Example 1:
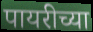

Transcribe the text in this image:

पायरीच्या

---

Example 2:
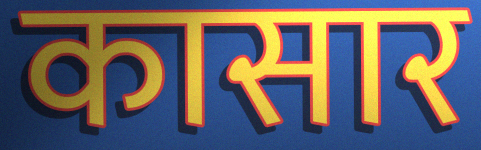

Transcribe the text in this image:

कासार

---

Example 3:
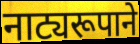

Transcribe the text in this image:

नाट्यरूपाने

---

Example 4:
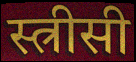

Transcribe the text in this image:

स्त्रीसी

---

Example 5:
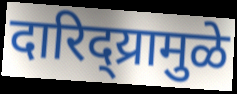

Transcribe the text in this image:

दारिद्य्रामुळे